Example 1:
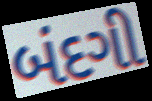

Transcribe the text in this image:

બંદગી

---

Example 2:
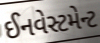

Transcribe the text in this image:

ઈનવેસ્ટમેન્ટ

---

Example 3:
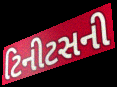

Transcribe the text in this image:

ટિનીટસની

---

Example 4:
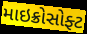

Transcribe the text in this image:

માઇક્રોસોફ્ટ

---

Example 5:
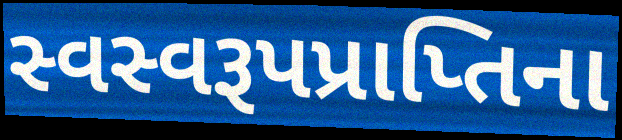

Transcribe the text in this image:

સ્વસ્વરૂપપ્રાપ્તિના